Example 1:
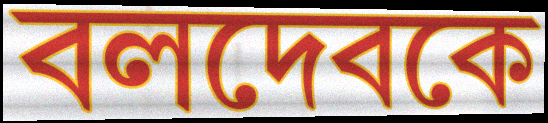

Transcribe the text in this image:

বলদেবকে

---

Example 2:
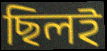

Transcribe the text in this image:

ছিলই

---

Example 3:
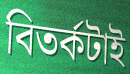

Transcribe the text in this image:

বিতর্কটাই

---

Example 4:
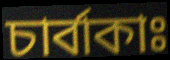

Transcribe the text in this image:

চার্বাকাঃ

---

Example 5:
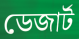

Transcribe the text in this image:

ডেজার্ট